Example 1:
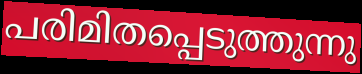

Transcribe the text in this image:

പരിമിതപ്പെടുത്തുന്നു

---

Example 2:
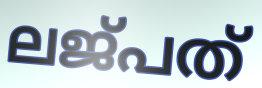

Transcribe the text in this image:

ലജ്പത്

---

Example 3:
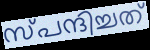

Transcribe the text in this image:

സ്പന്ദിച്ചത്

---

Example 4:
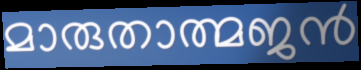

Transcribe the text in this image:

മാരുതാത്മജൻ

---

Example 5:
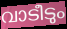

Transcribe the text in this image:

വാടീടും